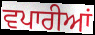
ਵਪਾਰੀਆਂ